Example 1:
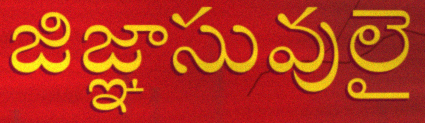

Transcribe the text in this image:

జిజ్ఞాసువులై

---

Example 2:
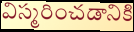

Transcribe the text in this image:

విస్మరించడానికి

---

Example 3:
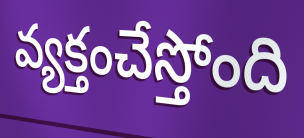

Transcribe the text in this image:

వ్యక్తంచేస్తోంది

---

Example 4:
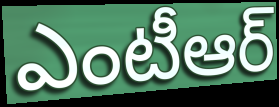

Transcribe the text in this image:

ఎంటీఆర్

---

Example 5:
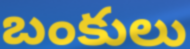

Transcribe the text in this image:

బంకులు